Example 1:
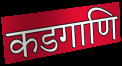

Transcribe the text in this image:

कडगाणि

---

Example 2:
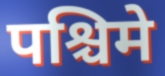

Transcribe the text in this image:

पश्चिमे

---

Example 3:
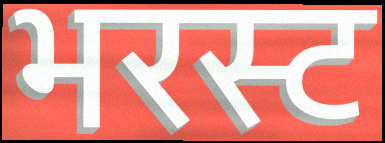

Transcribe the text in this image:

भरस्ट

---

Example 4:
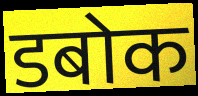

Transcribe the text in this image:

डबोक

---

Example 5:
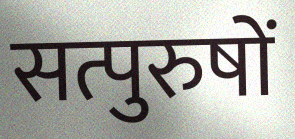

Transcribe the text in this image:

सत्पुरुषों